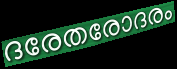
ദരേതരോദരം